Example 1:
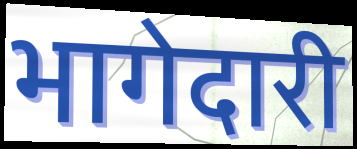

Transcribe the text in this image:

भागेदारी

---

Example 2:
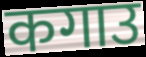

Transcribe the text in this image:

कगाउ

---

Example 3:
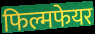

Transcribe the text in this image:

फिल्मफेयर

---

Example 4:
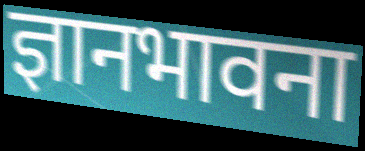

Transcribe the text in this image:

ज्ञानभावना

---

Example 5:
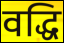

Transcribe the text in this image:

वद्धि